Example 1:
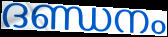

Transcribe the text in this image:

ദണ്ഡനം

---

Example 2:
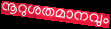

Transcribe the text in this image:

നൂറുശതമാനവും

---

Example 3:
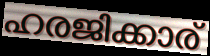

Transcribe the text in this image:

ഹരജിക്കാര്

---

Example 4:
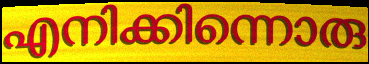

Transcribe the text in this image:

എനിക്കിന്നൊരു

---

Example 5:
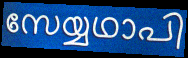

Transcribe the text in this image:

സേയ്യഥാപി